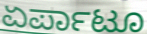
ಏರ್ಪಾಟೂ